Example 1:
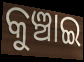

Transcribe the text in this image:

କୁଞ୍ଚାଇ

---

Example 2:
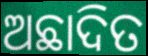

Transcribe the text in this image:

ଅଛାଦିତ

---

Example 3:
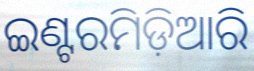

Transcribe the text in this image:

ଇଣ୍ଟରମିଡ଼ିଆରି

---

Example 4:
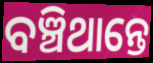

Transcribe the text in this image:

ବଞ୍ଚିଥାନ୍ତେ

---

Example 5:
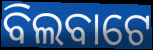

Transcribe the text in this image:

ବିଲବାଟେ